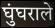
घुंघराले